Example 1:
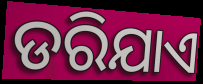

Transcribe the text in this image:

ଡରିଯାଏ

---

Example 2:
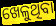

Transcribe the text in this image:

ଖେଳୁଥିବା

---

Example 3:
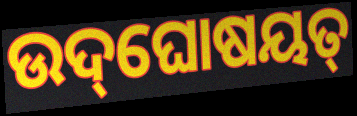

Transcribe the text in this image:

ଉଦ୍‌ଘୋଷୟତ୍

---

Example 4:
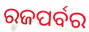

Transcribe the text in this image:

ରଜପର୍ବର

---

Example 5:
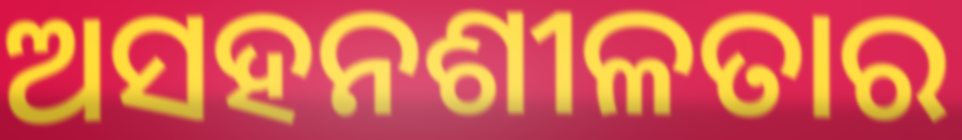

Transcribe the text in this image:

ଅସହନଶୀଳତାର